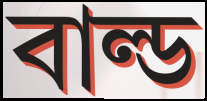
বাল্ড